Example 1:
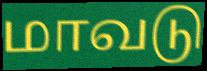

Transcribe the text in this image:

மாவடு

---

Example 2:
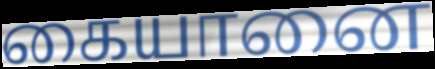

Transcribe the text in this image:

கையானை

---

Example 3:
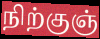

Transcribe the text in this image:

நிற்குஞ்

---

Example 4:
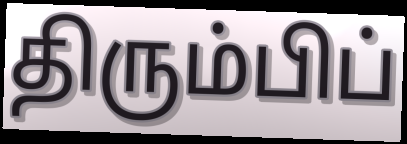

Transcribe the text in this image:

திரும்பிப்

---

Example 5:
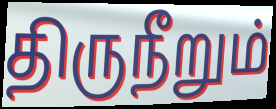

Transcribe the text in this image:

திருநீறும்